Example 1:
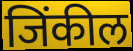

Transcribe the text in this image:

जिंकील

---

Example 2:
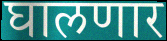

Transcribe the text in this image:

घालणार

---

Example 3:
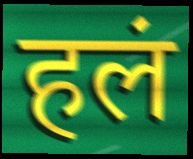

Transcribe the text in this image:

हलं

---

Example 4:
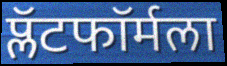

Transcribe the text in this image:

प्लॅटफॉर्मला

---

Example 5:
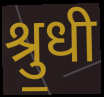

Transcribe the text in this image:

श्रु॒धी